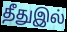
தீதுஇல்